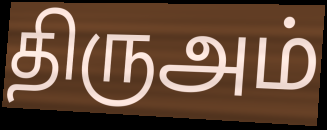
திருஅம்